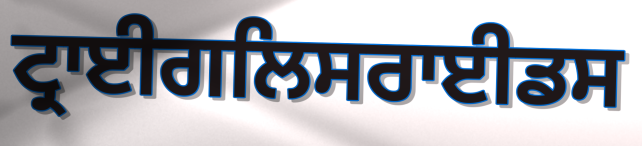
ਟ੍ਰਾਈਗਲਿਸਰਾਈਡਸ